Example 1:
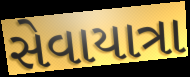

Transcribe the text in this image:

સેવાયાત્રા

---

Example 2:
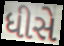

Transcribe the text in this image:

ધીસે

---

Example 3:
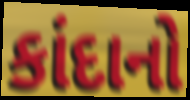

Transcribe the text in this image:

કાંદાનો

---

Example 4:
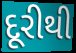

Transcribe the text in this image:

દૂરીથી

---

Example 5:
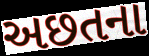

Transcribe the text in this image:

અછતના